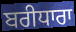
ਬਰੀਧਾਰਾ